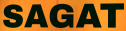
SAGAT